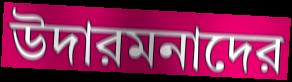
উদারমনাদের